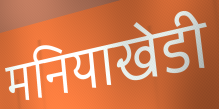
मनियाखेडी